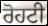
ਰੋਹਟੀ